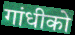
गांधीको